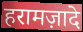
हरामज़ादे